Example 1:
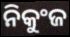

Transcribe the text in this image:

ନିକୁଂଜ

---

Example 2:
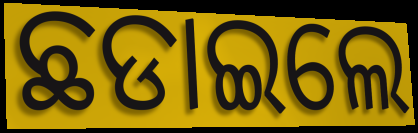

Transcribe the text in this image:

ଛଡାଇଲେ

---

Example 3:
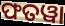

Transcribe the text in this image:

ଫତୱା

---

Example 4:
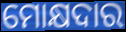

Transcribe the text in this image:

ମୋକ୍ଷଦାର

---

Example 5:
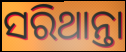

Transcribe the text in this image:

ସରିଥାନ୍ତା